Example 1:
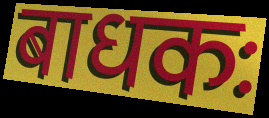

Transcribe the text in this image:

बाधकः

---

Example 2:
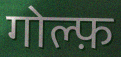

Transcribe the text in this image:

गोल्फ़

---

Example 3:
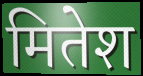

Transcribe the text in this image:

मितेश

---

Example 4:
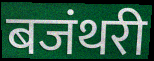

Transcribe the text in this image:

बजंथरी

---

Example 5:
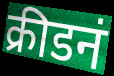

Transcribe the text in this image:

क्रीडनं